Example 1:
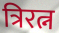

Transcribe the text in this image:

त्रिरत्न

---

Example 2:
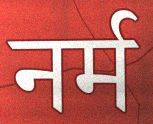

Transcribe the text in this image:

नर्म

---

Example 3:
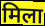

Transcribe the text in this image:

मिला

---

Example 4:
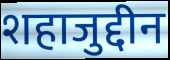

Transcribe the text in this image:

शहाजुद्दीन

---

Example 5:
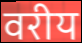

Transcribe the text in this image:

वरीय